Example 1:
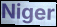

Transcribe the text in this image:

Niger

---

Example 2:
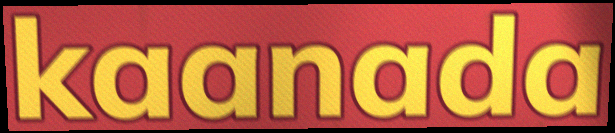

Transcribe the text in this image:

kaanada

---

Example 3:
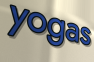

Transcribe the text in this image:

yogas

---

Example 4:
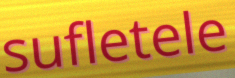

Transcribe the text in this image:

sufletele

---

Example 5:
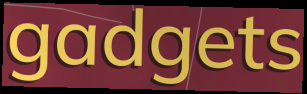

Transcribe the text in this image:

gadgets